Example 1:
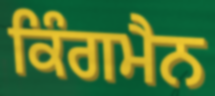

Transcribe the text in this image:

ਕਿੰਗਮੈਨ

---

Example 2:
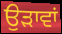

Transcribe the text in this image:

ਉੜਾਵਾਂ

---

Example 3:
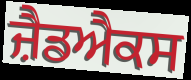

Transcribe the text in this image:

ਜ਼ੈਡਐਕਸ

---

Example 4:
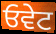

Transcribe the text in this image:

ਓਵੇਟ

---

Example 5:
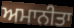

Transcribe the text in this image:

ਅਮਾਨੀਤਾ